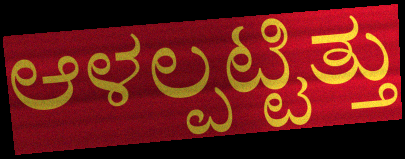
ಆಳಲ್ಪಟ್ಟಿತ್ತು